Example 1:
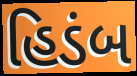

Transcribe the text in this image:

હિડંબ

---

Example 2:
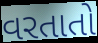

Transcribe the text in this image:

વરતાતો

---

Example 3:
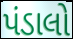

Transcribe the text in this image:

પંડાલો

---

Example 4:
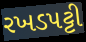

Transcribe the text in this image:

રખડપટ્ટી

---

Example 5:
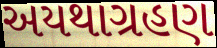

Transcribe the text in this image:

અયથાગ્રહણ